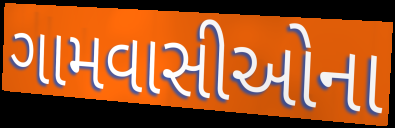
ગામવાસીઓના